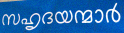
സഹൃദയന്മാർ